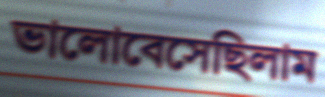
ভালোবেসেছিলাম